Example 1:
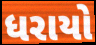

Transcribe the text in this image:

ધરાયો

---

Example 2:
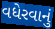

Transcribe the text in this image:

વધેરવાનું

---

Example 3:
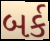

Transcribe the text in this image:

બર્ક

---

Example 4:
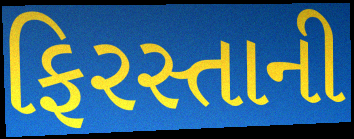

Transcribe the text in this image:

ફિરસ્તાની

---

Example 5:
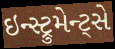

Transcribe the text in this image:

ઇન્સ્ટ્રુમેન્ટ્સે